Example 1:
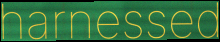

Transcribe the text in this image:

harnessed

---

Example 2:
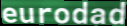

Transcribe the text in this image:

eurodad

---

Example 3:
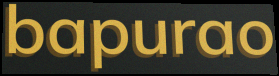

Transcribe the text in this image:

bapurao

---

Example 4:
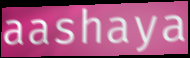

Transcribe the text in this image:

aashaya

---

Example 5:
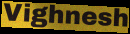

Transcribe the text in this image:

Vighnesh